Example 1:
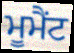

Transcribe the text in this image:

ਮੂਮੈਂਟ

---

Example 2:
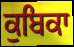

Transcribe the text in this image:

ਕੁਬਿਕਾ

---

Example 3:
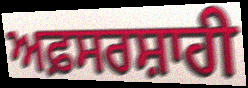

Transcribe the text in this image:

ਅਫ਼ਸਰਸ਼ਾਹੀ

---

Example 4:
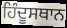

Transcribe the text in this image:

ਹਿੰਦੂਸਥਾਨ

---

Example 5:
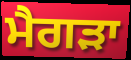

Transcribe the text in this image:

ਮੈਗੜਾ